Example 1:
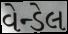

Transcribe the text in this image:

વેન્ડેલ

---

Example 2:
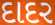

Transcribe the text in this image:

દાદર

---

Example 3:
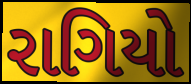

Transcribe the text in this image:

રાગિયો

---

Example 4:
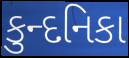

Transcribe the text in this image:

કુન્દનિકા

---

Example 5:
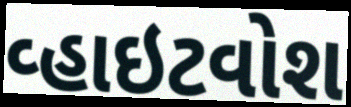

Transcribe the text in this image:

વ્હાઇટવોશ